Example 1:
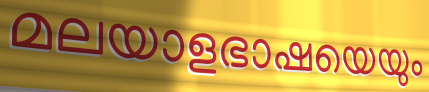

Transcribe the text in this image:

മലയാളഭാഷയെയും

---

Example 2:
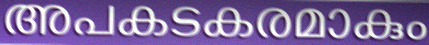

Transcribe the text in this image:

അപകടകരമാകും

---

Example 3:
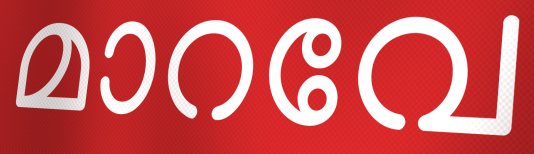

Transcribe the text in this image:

മാറവേ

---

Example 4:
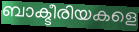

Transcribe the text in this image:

ബാക്ടീരിയകളെ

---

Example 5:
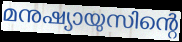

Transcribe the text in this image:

മനുഷ്യായുസിന്റെ